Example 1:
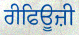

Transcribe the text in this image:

ਰੀਫਿਊਜ਼ੀ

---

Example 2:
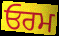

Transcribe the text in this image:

ਓਰਮ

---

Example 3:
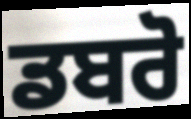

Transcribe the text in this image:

ਡਬਰੋ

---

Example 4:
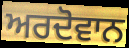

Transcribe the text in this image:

ਅਰਦੋਵਾਨ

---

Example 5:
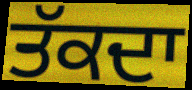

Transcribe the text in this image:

ਤੱਕਦਾ